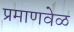
प्रमाणवेळ